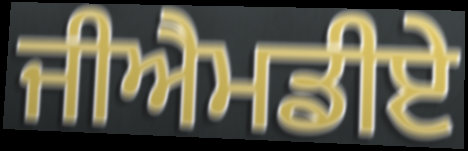
ਜੀਐਮਡੀਏ